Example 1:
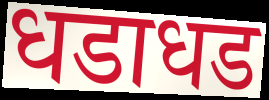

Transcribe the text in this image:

धडाधड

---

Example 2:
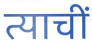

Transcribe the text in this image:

त्याचीं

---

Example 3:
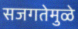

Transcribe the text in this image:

सजगतेमुळे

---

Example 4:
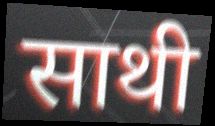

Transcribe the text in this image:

साथी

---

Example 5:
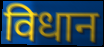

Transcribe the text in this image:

विधान